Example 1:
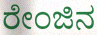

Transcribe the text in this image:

ರೇಂಜಿನ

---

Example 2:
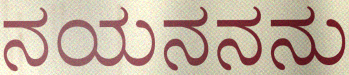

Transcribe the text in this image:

ನಯನನನು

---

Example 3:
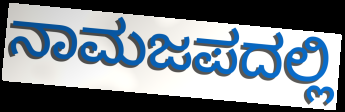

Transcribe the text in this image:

ನಾಮಜಪದಲ್ಲಿ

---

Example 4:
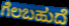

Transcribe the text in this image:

ಗೆಲಬಹುದೆ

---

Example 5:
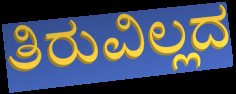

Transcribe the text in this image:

ತಿರುವಿಲ್ಲದ